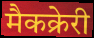
मैकक्रेरी